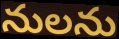
నులను